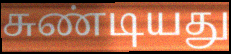
சுண்டியது